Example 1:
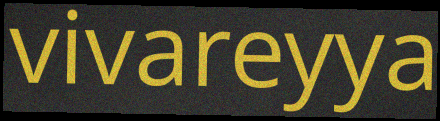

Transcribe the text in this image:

vivareyya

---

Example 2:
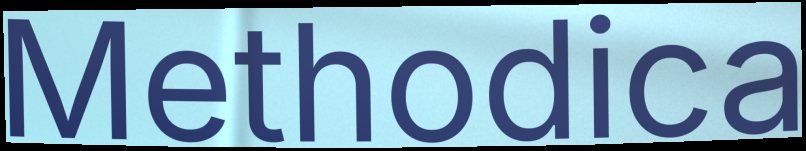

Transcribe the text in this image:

Methodica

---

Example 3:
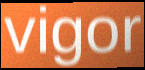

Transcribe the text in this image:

vigor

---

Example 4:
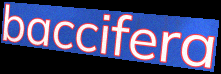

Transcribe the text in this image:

baccifera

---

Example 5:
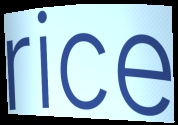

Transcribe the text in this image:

rice